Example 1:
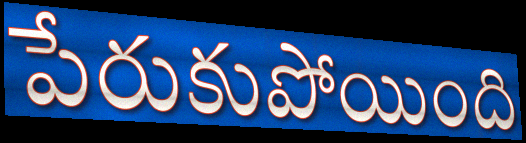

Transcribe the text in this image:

పేరుకుపోయింది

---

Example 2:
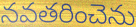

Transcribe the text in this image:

నవతరించెను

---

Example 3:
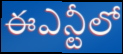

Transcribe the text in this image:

ఈఎన్టీలో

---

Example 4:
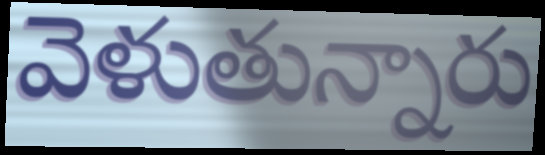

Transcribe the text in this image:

వెళుతున్నారు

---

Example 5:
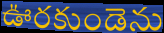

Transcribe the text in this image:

ఊరకుండెను